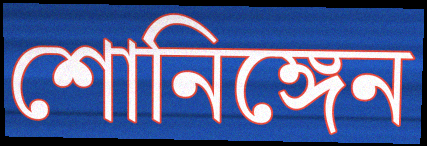
শোনিঙ্গেন